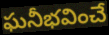
ఘనీభవించే